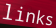
links